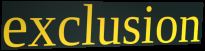
exclusion